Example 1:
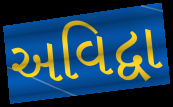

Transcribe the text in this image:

અવિદ્વા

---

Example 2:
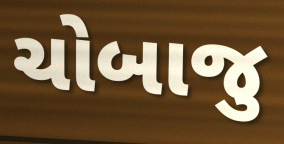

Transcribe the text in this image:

ચોબાજુ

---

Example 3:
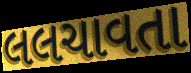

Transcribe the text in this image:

લલચાવતા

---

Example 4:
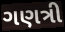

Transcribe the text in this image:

ગણત્રી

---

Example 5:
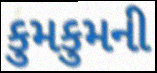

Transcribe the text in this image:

કુમકુમની